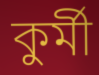
কুৰ্মী